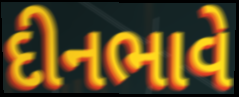
દીનભાવે